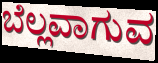
ಬೆಲ್ಲವಾಗುವ